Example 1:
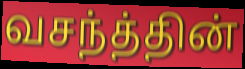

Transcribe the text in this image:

வசந்த்தின்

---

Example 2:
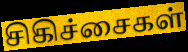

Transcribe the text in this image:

சிகிச்சைகள்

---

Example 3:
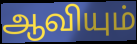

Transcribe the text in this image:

ஆவியும்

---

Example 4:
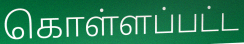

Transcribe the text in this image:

கொள்ளப்பட்ட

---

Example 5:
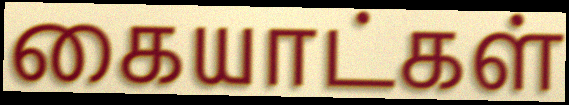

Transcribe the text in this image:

கையாட்கள்